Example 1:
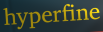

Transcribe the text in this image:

hyperfine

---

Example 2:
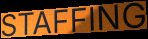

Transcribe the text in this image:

STAFFING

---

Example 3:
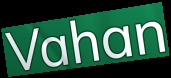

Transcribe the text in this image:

Vahan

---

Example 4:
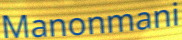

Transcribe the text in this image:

Manonmani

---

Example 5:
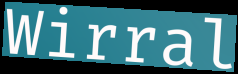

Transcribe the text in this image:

Wirral